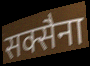
सक्सैना